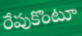
రేపుకొంటూ